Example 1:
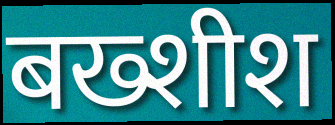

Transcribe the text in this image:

बख्शीश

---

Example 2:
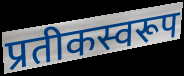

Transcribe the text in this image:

प्रतीकस्वरूप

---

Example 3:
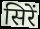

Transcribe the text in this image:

सिरें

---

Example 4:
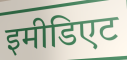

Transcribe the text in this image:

इमीडिएट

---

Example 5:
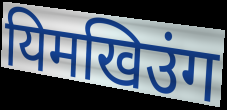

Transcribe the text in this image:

यिमखिउंग